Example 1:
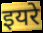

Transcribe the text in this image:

इयरे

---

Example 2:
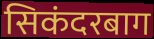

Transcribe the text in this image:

सिकंदरबाग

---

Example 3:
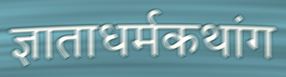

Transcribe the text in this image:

ज्ञाताधर्मकथांग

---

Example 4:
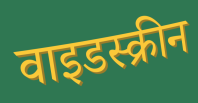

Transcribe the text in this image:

वाइडस्क्रीन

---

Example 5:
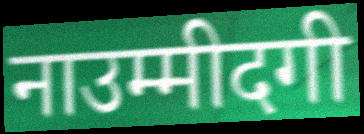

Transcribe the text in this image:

नाउम्मीदगी